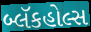
બ્લૅકહોલ્સ